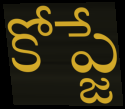
కోప్జే